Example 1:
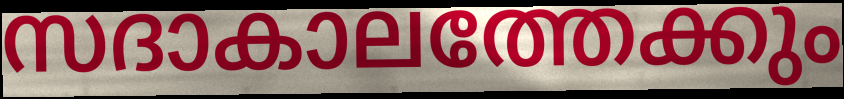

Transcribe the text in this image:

സദാകാലത്തേക്കും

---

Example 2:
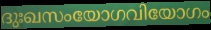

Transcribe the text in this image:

ദുഃഖസംയോഗവിയോഗം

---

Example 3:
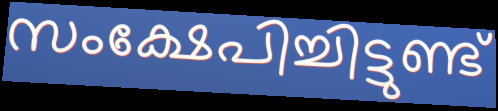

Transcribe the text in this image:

സംക്ഷേപിച്ചിട്ടുണ്ട്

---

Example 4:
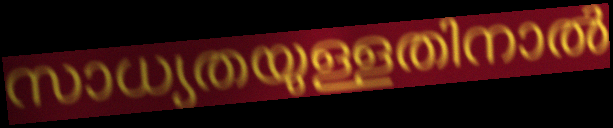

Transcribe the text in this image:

സാധ്യതയുള്ളതിനാൽ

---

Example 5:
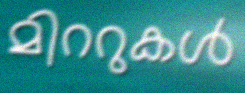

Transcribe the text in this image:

മിററുകൾ